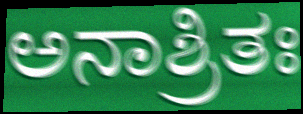
ಅನಾಶ್ರಿತಃ